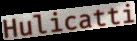
Hulicatti